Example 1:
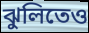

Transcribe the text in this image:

ঝুলিতেও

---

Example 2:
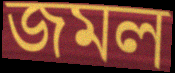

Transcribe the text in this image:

জমল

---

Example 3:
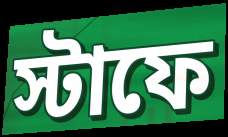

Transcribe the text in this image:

স্টাফে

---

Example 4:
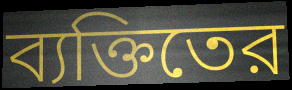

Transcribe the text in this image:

ব্যক্তিতের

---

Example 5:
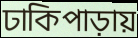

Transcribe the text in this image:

ঢাকিপাড়ায়